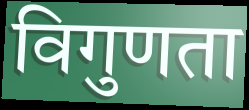
विगुणता